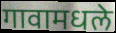
गावामधले